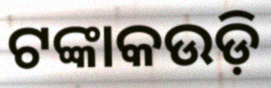
ଟଙ୍କାକଉଡ଼ି